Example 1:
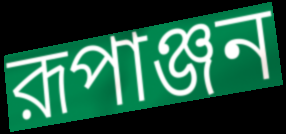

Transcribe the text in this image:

রূপাঞ্জন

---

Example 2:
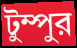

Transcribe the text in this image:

টুম্পুর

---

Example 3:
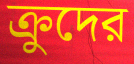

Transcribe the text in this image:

ক্রুদের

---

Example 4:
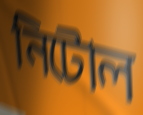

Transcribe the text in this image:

নিটোল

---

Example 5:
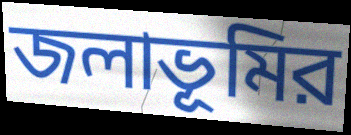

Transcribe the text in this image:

জলাভূমির